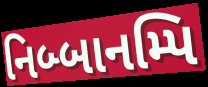
નિબ્બાનમ્પિ